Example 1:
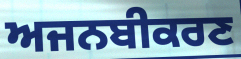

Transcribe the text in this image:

ਅਜਨਬੀਕਰਣ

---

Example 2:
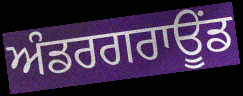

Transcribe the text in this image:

ਅੰਡਰਗਰਾਊਂਡ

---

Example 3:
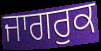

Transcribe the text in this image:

ਜਾਗਰੁਕ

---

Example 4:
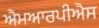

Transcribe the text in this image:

ਐਮਆਰਪੀਐਸ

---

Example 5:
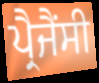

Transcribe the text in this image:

ਪ੍ਰੈਜੈਂਸੀ